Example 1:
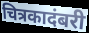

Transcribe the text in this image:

चित्रकादंबरी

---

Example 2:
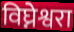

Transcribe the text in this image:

विघ्नेश्वरा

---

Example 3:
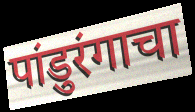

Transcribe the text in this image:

पांडुरंगाचा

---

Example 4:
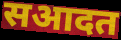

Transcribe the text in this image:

सआदत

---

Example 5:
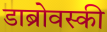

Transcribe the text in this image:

डाब्रोवस्की